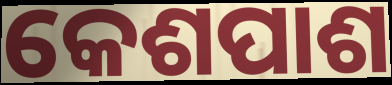
କେଶପାଶ